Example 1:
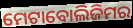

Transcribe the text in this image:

ମେଟାବୋଲିଜିମର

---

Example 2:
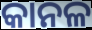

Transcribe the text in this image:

କାନଳ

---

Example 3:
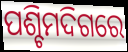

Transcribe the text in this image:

ପଶ୍ଚିମଦିଗରେ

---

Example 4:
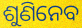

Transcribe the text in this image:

ଶୁଣିନେବ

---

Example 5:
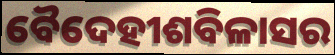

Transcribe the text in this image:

ବୈଦେହୀଶବିଳାସର